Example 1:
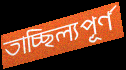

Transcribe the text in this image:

তাচ্ছিল্যপূর্ণ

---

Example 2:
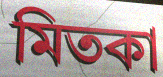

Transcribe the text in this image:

মিতকা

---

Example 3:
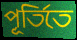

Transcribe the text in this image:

পূর্তিতে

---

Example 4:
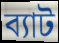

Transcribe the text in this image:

ব্যাট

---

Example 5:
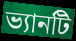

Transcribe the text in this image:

ভ্যানটি